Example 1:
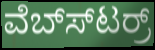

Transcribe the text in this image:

ವೆಬ್ಸ್‍ಟರ್ರ್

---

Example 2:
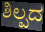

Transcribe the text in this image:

ಶಿಲ್ಪದ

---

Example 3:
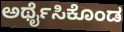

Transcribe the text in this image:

ಅರ್ಥೈಸಿಕೊಂಡ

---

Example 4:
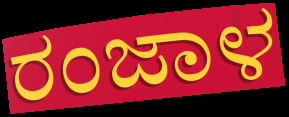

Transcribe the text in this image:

ರಂಜಾಳ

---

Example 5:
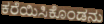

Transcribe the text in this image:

ಕರೆಯಿಸಿಕೊಂಡನು